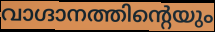
വാഗ്ദാനത്തിന്റെയും